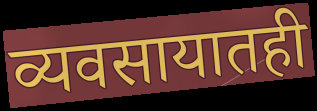
व्यवसायातही